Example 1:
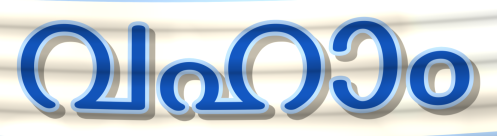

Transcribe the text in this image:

വഹാം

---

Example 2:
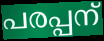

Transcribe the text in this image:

പരപ്പന്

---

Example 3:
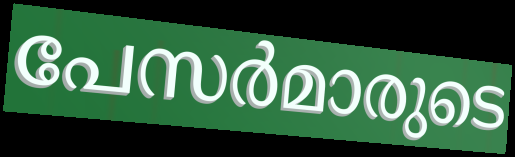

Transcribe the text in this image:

പേസർമാരുടെ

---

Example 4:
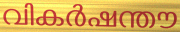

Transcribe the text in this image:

വികർഷന്തൗ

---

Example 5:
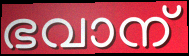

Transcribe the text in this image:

ഭവാന്